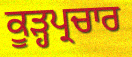
ਕੂੜ੍ਹਪ੍ਰਚਾਰ